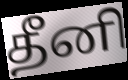
தீனி